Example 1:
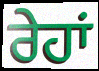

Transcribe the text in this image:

ਰੇਹਾਂ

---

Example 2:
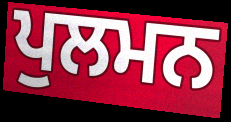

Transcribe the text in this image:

ਪੁਲਮਨ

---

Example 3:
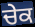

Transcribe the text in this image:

ਚੇਕ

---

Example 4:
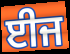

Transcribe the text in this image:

ਈਜ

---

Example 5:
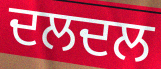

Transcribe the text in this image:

ਦਲਦਲ